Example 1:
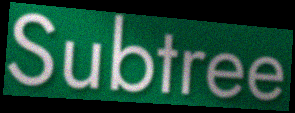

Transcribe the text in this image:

Subtree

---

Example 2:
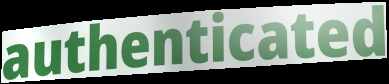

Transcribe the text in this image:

authenticated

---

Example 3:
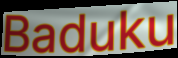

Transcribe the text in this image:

Baduku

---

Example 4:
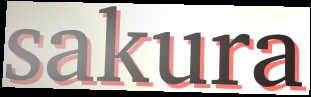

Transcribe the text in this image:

sakura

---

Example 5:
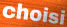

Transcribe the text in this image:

choisi